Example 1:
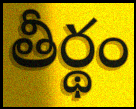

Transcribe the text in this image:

తీర్థం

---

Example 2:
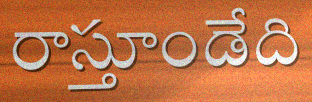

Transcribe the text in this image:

రాస్తూండేది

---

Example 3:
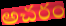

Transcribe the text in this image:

అచరం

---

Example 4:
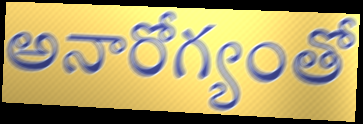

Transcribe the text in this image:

అనారోగ్యంతో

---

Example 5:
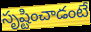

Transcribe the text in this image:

సృష్టించాడంటే